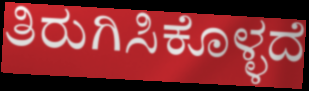
ತಿರುಗಿಸಿಕೊಳ್ಳದೆ